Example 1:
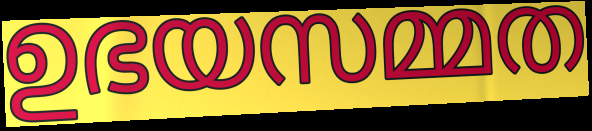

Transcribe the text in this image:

ഉഭയസമ്മത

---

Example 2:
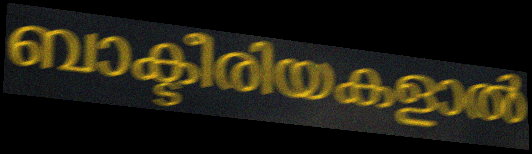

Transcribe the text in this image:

ബാക്ടീരിയകളാൽ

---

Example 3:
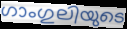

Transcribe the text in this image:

ഗാംഗുലിയുടെ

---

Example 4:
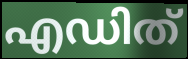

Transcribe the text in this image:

എഡിത്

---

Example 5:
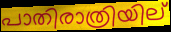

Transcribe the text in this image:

പാതിരാത്രിയില്